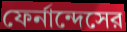
ফের্নান্দেসের